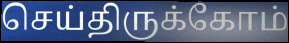
செய்திருக்கோம்